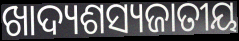
ଖାଦ୍ୟଶସ୍ୟଜାତୀୟ